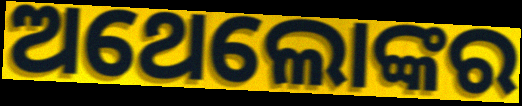
ଅଥେଲୋଙ୍କର